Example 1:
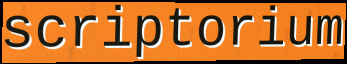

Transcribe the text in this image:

scriptorium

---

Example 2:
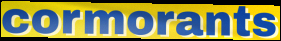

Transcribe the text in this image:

cormorants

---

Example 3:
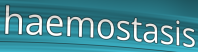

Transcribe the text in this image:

haemostasis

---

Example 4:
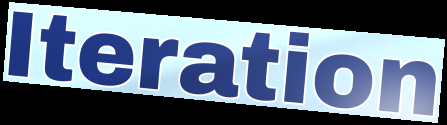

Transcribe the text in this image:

Iteration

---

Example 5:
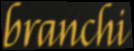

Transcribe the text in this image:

branchi